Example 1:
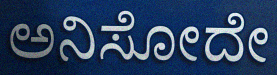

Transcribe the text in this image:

ಅನಿಸೋದೇ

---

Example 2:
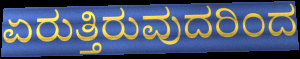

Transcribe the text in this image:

ಏರುತ್ತಿರುವುದರಿಂದ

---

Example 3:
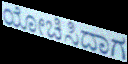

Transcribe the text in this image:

ಯೋಚಿಸಿದಾಗ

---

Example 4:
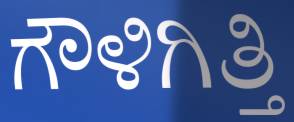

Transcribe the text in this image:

ಗೌಳಿಗಿತ್ತಿ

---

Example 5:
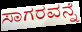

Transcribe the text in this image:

ಸಾಗರವನ್ನೆ